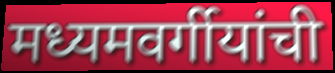
मध्यमवर्गीयांची